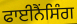
ਫਾਈਨੈਂਸਿੰਗ